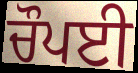
ਚੌਪਈ